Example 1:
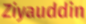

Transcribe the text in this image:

Ziyauddin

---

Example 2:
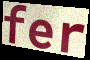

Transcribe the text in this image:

fer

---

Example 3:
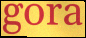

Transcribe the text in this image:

gora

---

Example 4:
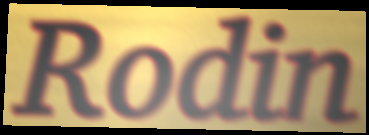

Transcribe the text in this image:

Rodin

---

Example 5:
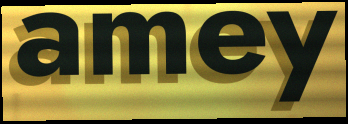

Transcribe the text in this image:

amey